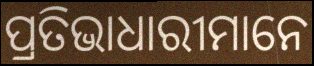
ପ୍ରତିଭାଧାରୀମାନେ